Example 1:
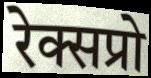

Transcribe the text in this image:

रेक्सप्रो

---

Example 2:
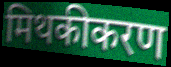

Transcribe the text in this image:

मिथकीकरण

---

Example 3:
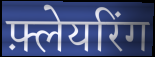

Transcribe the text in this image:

फ़्लेयरिंग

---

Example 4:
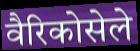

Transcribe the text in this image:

वैरिकोसेले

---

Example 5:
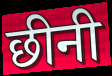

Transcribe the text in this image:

छीनी